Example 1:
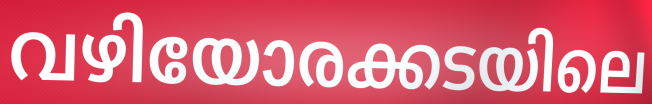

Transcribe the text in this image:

വഴിയോരക്കടയിലെ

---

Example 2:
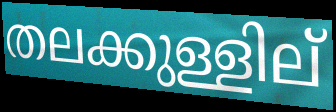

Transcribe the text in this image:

തലക്കുള്ളില്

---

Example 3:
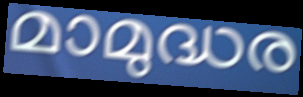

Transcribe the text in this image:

മാമുദ്ധര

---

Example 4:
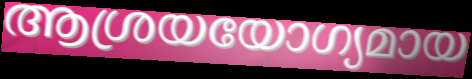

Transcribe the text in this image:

ആശ്രയയോഗ്യമായ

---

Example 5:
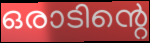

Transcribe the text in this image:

ഒരാടിന്റെ